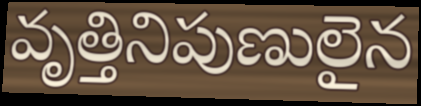
వృత్తినిపుణులైన